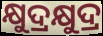
କ୍ଷୁଦ୍ରକ୍ଷୁଦ୍ର